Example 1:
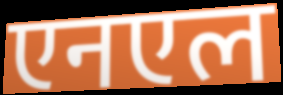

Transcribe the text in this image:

एनएल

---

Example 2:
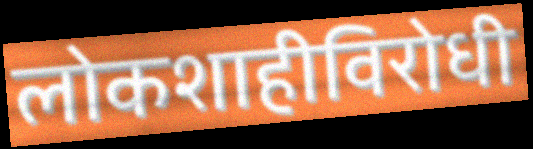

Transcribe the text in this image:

लोकशाहीविरोधी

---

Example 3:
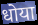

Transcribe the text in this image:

धोया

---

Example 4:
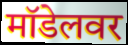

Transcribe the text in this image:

मॉडेलवर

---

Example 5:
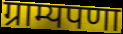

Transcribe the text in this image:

ग्राम्यपणा